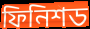
ফিনিশড